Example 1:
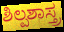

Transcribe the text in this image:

ಶಿಲ್ಪಶಾಸ್ತ್ರ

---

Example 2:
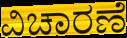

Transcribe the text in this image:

ವಿಚಾರಣೆ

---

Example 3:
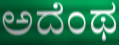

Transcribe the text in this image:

ಅದೆಂಥ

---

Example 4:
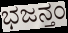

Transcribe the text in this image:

ಭಜನ್ತಂ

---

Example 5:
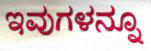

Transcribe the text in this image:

ಇವುಗಳನ್ನೂ